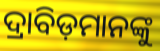
ଦ୍ରାବିଡ଼ମାନଙ୍କୁ